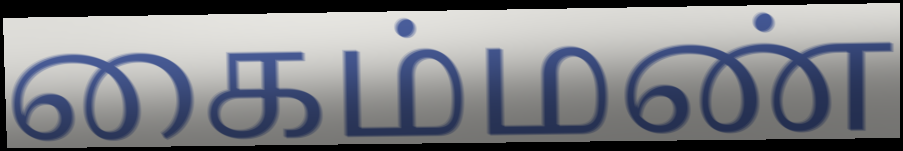
கைம்மண்